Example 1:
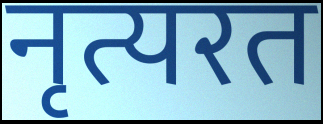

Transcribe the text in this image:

नृत्यरत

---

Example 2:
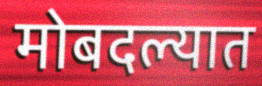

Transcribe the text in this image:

मोबदल्यात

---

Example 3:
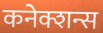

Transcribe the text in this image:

कनेक्शन्स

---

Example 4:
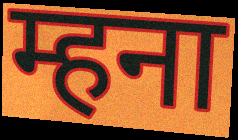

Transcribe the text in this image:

म्हना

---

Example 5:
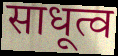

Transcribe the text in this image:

साधूत्व